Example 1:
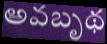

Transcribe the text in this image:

అవబృథ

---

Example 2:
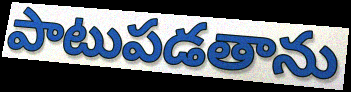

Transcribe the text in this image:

పాటుపడతాను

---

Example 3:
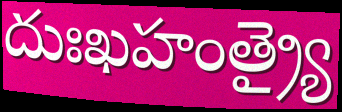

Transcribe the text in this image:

దుఃఖహంత్ర్యై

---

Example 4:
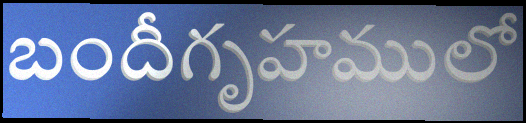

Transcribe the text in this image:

బందీగృహములో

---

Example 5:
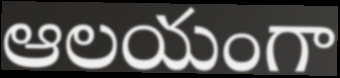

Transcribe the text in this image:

ఆలయంగా